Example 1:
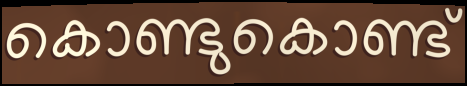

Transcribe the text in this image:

കൊണ്ടുകൊണ്ട്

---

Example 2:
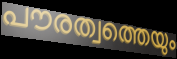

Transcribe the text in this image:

പൗരത്വത്തെയും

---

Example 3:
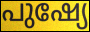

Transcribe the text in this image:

പുഷ്യേ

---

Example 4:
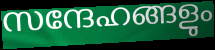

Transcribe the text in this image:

സന്ദേഹങ്ങളും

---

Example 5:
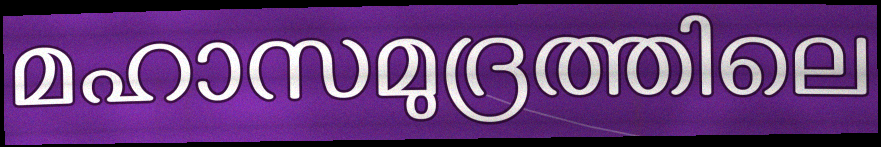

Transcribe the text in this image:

മഹാസമുദ്രത്തിലെ